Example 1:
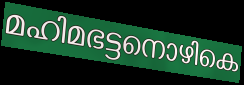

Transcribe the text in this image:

മഹിമഭട്ടനൊഴികെ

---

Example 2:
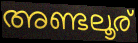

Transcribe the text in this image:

അണ്ടലൂര്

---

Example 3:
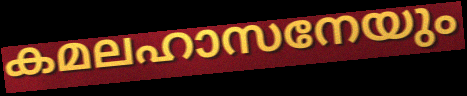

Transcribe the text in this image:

കമലഹാസനേയും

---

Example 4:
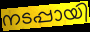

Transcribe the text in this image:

നടപ്പായി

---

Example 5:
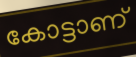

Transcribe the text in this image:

കോട്ടാണ്